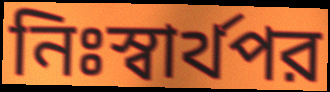
নিঃস্বার্থপর